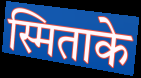
स्मिताके